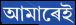
আমাৰেই